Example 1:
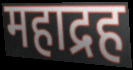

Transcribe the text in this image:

महाद्रह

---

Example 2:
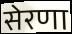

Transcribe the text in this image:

सेरणा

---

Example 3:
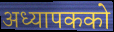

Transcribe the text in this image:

अध्यापकको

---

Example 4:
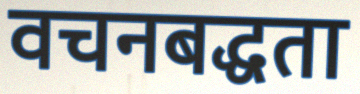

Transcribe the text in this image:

वचनबद्धता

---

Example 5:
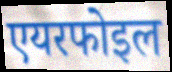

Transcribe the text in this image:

एयरफोइल